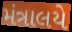
મંત્રાલયે